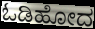
ಓಡಿಹೋದ